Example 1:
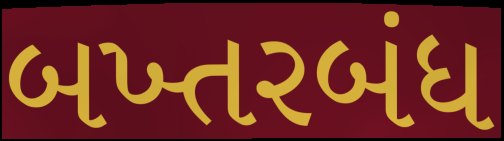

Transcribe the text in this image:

બખ્તરબંધ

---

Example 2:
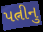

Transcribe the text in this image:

પત્નીનુ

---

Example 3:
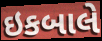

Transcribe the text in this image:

ઇકબાલે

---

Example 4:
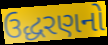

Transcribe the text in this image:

ઉદ્ધરણનો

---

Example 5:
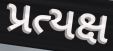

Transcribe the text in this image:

પ્રત્યક્ષ